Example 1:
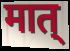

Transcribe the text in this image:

मात्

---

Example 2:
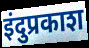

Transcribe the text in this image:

इंदुप्रकाश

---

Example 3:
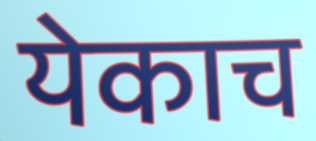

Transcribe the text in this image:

येकाच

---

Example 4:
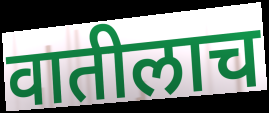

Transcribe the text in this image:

वातीलाच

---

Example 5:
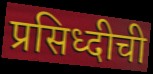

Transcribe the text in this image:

प्रसिध्दीची